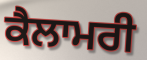
ਕੈਲਾਮਰੀ